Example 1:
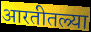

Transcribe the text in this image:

आरतीतल्या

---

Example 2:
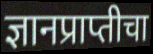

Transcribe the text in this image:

ज्ञानप्राप्तीचा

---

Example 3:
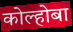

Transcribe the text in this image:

कोल्होबा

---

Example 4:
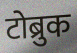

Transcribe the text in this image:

टोब्रुक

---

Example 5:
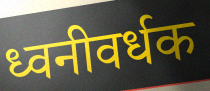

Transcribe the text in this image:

ध्वनीवर्धक